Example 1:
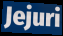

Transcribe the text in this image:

Jejuri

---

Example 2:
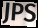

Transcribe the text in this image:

JPS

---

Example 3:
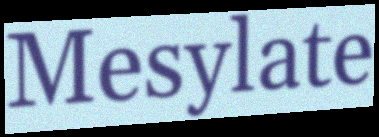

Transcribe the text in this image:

Mesylate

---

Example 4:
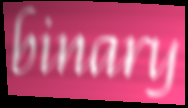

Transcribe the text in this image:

binary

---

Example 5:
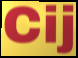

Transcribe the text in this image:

Cij